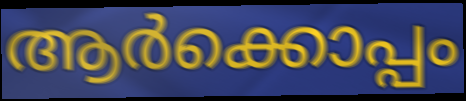
ആർക്കൊപ്പം